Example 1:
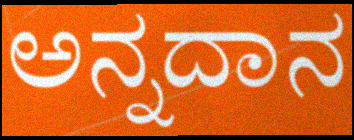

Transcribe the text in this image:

ಅನ್ನದಾನ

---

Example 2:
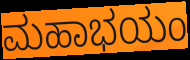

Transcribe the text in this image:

ಮಹಾಭಯಂ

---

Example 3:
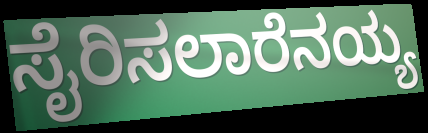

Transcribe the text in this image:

ಸೈರಿಸಲಾರೆನಯ್ಯ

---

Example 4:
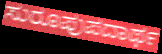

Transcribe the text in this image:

ಸುರೂಪುಪದಾರ್ಥ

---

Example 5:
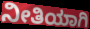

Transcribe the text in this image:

ನೀತಿಯಾಗಿ